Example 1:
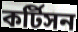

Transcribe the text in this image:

কর্টিসন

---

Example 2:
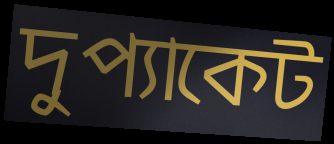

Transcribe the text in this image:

দুপ্যাকেট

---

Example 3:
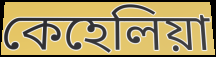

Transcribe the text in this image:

কেহেলিয়া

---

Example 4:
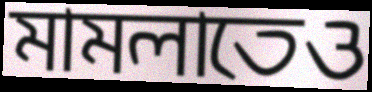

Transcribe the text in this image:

মামলাতেও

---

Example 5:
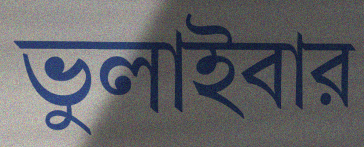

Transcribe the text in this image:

ভুলাইবার